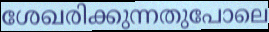
ശേഖരിക്കുന്നതുപോലെ